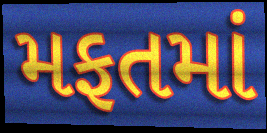
મફતમાં